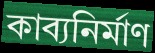
কাব্যনির্মাণ